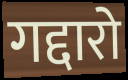
गद्दारो